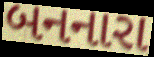
બનનારા